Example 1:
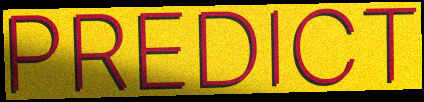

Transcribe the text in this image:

PREDICT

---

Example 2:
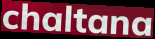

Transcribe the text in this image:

chaltana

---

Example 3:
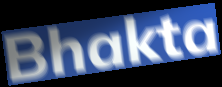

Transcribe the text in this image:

Bhakta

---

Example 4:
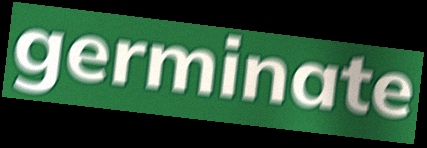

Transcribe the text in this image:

germinate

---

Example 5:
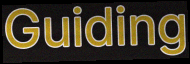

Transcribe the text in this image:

Guiding